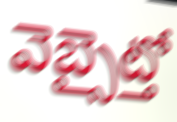
వెబ్సైట్తో